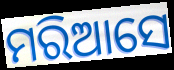
ମରିଆସେ